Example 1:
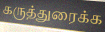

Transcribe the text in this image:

கருத்துரைக்க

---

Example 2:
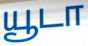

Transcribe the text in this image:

யூடா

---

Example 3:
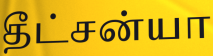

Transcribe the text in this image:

தீட்சன்யா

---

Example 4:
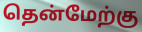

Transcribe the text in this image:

தென்மேற்கு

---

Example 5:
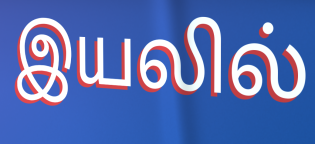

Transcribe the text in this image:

இயலில்